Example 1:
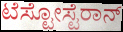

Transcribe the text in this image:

ಟೆಸ್ಟೋಸ್ಟೆರಾನ್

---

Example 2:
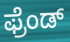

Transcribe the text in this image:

ಫ್ರೆಂಡ್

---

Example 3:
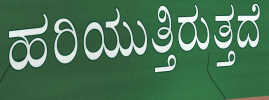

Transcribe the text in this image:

ಹರಿಯುತ್ತಿರುತ್ತದೆ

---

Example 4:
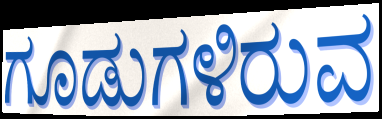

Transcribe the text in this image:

ಗೂಡುಗಳಿರುವ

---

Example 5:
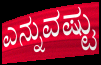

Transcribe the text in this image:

ಎನ್ನುವಷ್ಟು